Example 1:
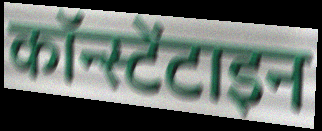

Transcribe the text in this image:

कॉन्स्टेंटाइन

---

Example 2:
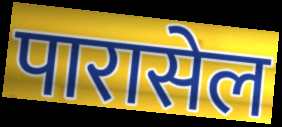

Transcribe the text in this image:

पारासेल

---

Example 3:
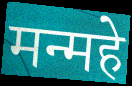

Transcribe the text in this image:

मन्महे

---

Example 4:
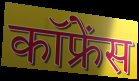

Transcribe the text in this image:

कॉफ्रेंस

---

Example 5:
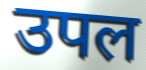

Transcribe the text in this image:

उपल